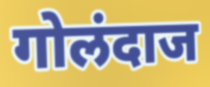
गोलंदाज